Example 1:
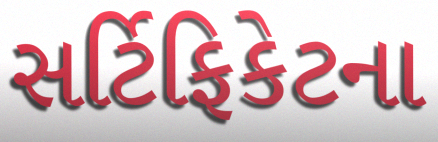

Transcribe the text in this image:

સર્ટિફિકેટના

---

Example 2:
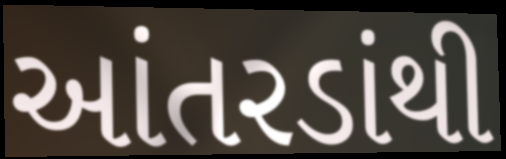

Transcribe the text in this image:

આંતરડાંથી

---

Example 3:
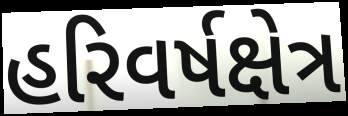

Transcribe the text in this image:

હરિવર્ષક્ષેત્ર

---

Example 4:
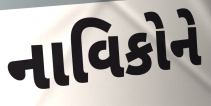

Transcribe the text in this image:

નાવિકોને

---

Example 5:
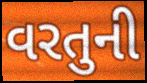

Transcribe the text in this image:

વરતુની